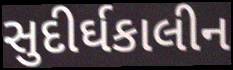
સુદીર્ઘકાલીન